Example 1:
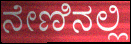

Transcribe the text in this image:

ನೇಣಿನಲ್ಲಿ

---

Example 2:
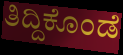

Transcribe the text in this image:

ತಿದ್ದಿಕೊಂಡೆ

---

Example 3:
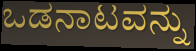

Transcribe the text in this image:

ಒಡನಾಟವನ್ನು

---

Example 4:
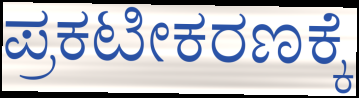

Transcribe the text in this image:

ಪ್ರಕಟೀಕರಣಕ್ಕೆ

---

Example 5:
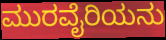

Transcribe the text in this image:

ಮುರವೈರಿಯನು